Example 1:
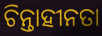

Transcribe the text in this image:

ଚିନ୍ତାହୀନତା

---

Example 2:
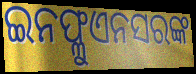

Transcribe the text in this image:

ଇନଫ୍ଳୁଏନସରଙ୍କ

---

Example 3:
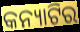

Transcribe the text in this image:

କନ୍ୟାଟିର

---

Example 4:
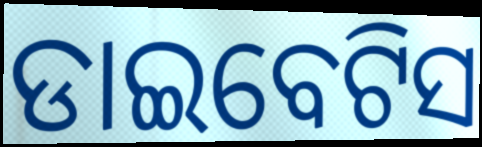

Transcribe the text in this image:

ଡାଇବେଟିସ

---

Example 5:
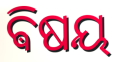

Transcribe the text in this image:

ଵିଷୟ